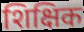
शिक्षिक